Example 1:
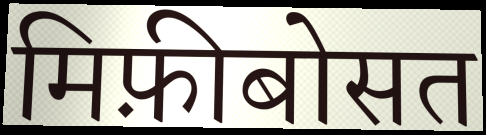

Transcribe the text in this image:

मिफ़ीबोसत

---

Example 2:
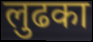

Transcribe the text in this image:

लुढका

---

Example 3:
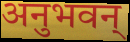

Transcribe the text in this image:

अनुभवन्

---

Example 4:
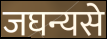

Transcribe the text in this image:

जघन्यसे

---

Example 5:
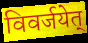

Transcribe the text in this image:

विवर्जयेत्